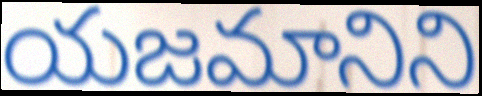
యజమానిని